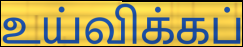
உய்விக்கப்